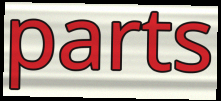
parts